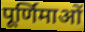
पूर्णिमाओं